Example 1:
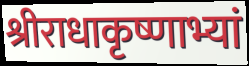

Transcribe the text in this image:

श्रीराधाकृष्णाभ्यां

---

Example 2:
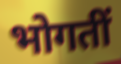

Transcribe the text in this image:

भोगतीं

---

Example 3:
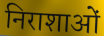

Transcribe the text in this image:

निराशाओं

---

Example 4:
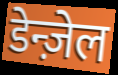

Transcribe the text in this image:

डेन्ज़ेल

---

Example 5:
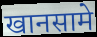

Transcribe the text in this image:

खानसामे